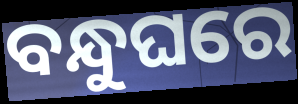
ବନ୍ଧୁଘରେ